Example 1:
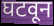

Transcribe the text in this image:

घटवून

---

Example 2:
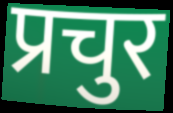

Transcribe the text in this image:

प्रचुर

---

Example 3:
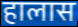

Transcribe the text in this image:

हालास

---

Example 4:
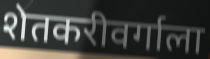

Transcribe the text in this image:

शेतकरीवर्गाला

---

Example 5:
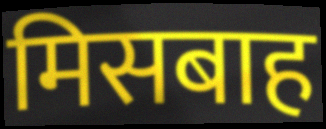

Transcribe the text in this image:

मिसबाह